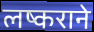
लष्कराने